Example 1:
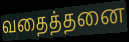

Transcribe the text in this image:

வதைத்தனை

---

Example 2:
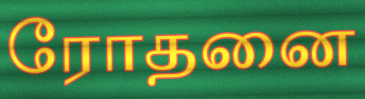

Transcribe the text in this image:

ரோதனை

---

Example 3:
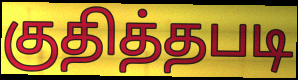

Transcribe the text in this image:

குதித்தபடி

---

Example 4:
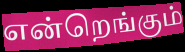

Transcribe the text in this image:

என்றெங்கும்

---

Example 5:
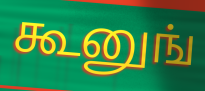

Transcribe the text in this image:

கூனுங்